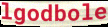
lgodbole